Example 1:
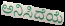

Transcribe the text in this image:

ಅನಿಸಿದೆಯೆ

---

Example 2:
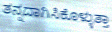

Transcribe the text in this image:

ತನ್ನದಾಗಿಸಿಕೊಳ್ಳುತ್ತಾ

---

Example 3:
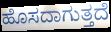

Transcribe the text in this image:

ಹೊಸದಾಗುತ್ತದೆ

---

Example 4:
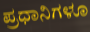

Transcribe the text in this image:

ಪ್ರಧಾನಿಗಳೂ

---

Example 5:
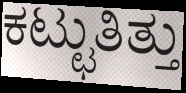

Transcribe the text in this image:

ಕಟ್ಟುತಿತ್ತು